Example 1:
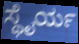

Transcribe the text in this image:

ಸ್ಥೈರ್ಯ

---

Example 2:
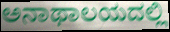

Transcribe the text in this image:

ಅನಾಥಾಲಯದಲ್ಲಿ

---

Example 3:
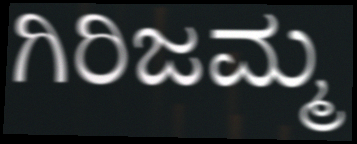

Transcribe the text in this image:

ಗಿರಿಜಮ್ಮ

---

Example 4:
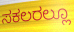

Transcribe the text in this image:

ಸಕಲರಲ್ಲೂ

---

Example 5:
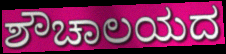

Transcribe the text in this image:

ಶೌಚಾಲಯದ